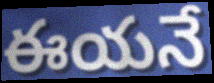
ఈయనే